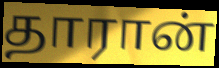
தாரான்